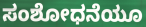
ಸಂಶೋಧನೆಯೂ